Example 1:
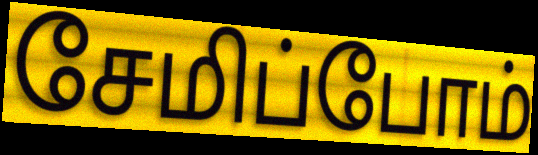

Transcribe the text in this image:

சேமிப்போம்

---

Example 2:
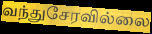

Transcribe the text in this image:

வந்துசேரவில்லை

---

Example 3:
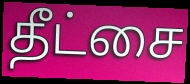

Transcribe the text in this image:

தீட்சை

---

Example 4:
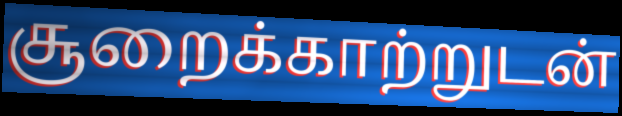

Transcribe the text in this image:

சூறைக்காற்றுடன்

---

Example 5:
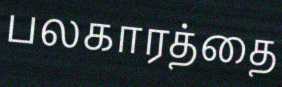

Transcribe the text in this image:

பலகாரத்தை